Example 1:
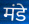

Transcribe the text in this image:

मंडे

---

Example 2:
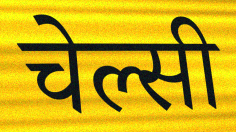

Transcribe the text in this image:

चेल्सी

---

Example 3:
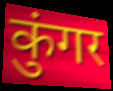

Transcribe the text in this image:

कुंगर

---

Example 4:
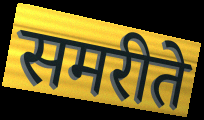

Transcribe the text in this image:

समरीते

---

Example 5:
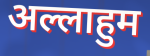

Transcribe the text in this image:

अल्लाहुम